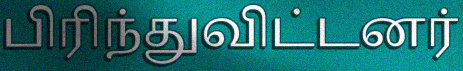
பிரிந்துவிட்டனர்